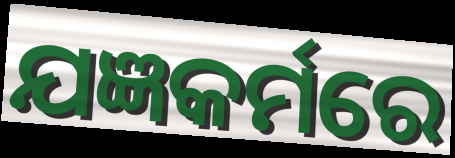
ଯଜ୍ଞକର୍ମରେ